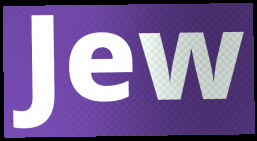
Jew